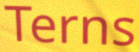
Terns